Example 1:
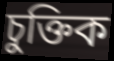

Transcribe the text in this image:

চুক্তিক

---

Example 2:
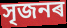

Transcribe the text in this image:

সৃজনৰ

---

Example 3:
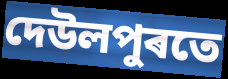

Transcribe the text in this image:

দেউলপুৰতে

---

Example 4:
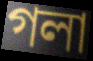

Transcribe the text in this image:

গলা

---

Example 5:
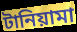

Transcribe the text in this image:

টানিয়ামা